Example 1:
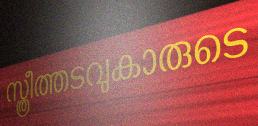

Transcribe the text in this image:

സ്ത്രീത്തടവുകാരുടെ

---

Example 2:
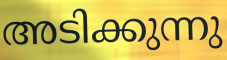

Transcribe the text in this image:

അടിക്കുന്നു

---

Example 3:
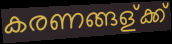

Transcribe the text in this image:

കരണങ്ങള്ക്ക്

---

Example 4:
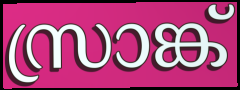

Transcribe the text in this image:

സ്രാങ്ക്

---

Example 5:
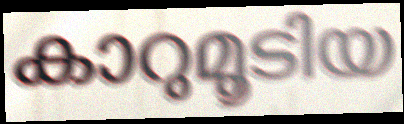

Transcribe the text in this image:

കാറുമൂടിയ